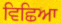
ਵਿਛਿਆ